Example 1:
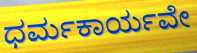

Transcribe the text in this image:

ಧರ್ಮಕಾರ್ಯವೇ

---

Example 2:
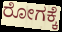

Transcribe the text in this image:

ರೋಗಕ್ಕೆ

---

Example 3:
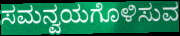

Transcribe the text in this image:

ಸಮನ್ವಯಗೊಳಿಸುವ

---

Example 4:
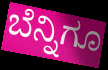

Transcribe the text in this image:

ಬೆನ್ನಿಗೂ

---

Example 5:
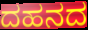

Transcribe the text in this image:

ದಹನದ